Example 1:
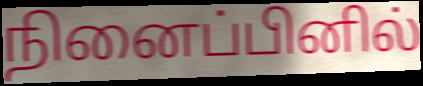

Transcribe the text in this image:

நினைப்பினில்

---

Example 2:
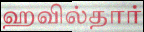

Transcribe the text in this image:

ஹவில்தார்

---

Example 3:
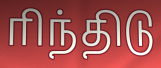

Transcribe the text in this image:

ரிந்திடு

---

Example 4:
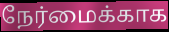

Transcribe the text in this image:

நேர்மைக்காக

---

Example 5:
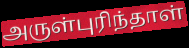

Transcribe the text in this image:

அருள்புரிந்தாள்